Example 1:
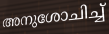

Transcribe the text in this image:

അനുശോചിച്ച്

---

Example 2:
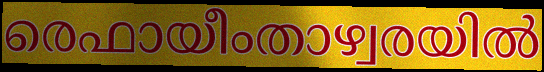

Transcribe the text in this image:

രെഫായീംതാഴ്വരയിൽ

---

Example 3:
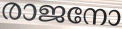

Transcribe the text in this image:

രാജനോ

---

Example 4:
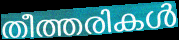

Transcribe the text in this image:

തീത്തരികൾ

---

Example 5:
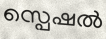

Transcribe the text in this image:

സ്പെഷൽ